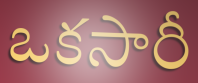
ఒకసారీ